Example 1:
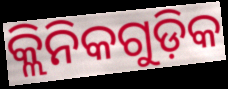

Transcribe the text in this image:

କ୍ଲିନିକଗୁଡ଼ିକ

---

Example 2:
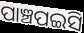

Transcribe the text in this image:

ପାଞ୍ଚପଇସି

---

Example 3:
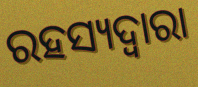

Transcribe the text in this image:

ରହସ୍ୟଦ୍ଵାରା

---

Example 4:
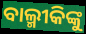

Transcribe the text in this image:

ବାଲ୍ମୀକିଙ୍କୁ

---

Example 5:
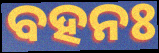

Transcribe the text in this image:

ବହନଃ